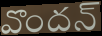
వొందన్